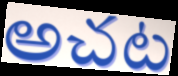
అచట